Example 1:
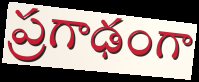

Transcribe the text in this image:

ప్రగాఢంగా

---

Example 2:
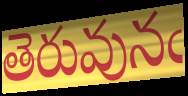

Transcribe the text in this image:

తెరువునఁ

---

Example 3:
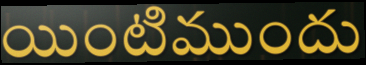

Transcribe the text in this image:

యింటిముందు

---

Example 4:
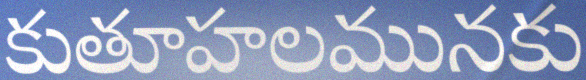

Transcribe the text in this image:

కుతూహలమునకు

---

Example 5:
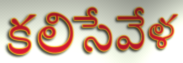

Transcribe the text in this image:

కలిసేవేళ